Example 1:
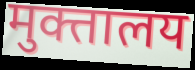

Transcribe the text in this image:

मुक्तालय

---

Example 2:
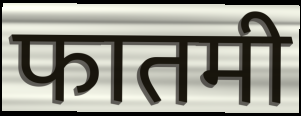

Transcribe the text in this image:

फातमी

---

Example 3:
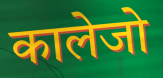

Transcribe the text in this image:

कालेजो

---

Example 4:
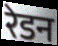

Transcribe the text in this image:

रेडन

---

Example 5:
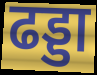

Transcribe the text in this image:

ढड्डा